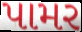
પામર